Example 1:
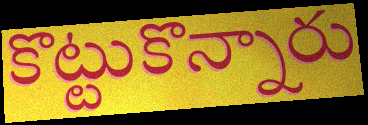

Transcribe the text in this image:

కొట్టుకొన్నారు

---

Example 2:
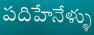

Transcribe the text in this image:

పదిహేనేళ్ళు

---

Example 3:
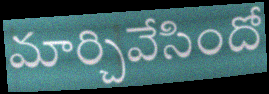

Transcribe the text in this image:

మార్చివేసిందో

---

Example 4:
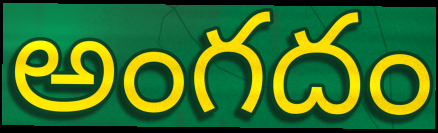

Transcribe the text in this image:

అంగదం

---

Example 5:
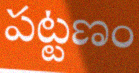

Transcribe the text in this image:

పట్టణం